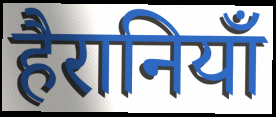
हैरानियाँ